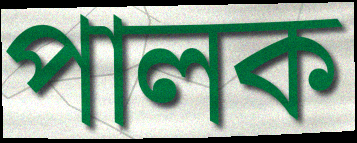
পালক